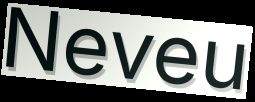
Neveu